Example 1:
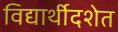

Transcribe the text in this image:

विद्यार्थीदशेत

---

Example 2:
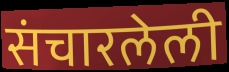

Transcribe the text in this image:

संचारलेली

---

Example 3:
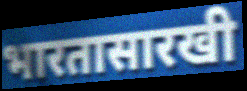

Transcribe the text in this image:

भारतासारखी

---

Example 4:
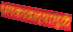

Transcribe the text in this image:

धमकावल्यामुळे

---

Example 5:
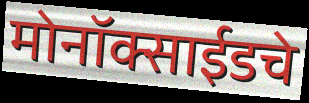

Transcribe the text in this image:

मोनॉक्साईडचे